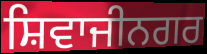
ਸ਼ਿਵਾਜੀਨਗਰ